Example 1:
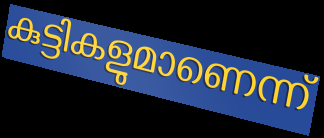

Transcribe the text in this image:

കുട്ടികളുമാണെന്ന്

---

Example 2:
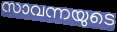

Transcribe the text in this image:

സാവന്നയുടെ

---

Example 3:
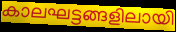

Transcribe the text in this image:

കാലഘട്ടങ്ങളിലായി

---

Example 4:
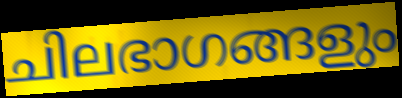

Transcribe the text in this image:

ചിലഭാഗങ്ങളും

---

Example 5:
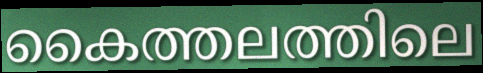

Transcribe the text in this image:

കൈത്തലത്തിലെ